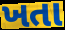
ખતા